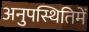
अनुपस्थितिमें